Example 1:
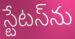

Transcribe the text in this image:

స్టేటస్‌ను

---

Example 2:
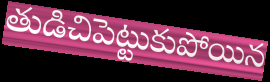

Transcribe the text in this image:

తుడిచిపెట్టుకుపోయిన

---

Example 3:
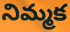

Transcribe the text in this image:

నిమ్మక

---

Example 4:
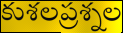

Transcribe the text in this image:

కుశలప్రశ్నల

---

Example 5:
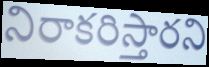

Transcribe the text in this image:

నిరాకరిస్తారని